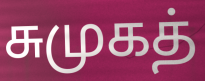
சுமுகத்